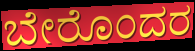
ಬೇರೊಂದರ